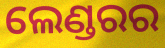
ଲେଣ୍ଡରର